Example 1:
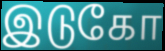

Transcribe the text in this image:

இடுகோ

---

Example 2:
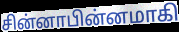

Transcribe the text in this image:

சின்னாபின்னமாகி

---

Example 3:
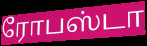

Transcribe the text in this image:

ரோபஸ்டா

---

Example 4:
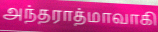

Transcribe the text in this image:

அந்தராத்மாவாகி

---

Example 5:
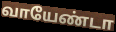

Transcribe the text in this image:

வாயேண்டா